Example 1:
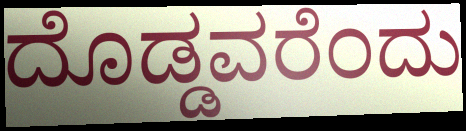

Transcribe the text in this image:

ದೊಡ್ಡವರೆಂದು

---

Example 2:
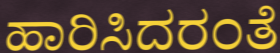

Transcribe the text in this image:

ಹಾರಿಸಿದರಂತೆ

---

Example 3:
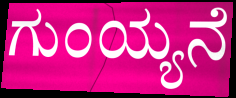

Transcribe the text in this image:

ಗುಂಯ್ಯನೆ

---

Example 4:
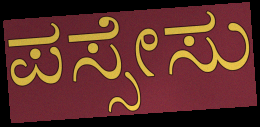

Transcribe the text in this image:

ಪಸ್ಸೇಸು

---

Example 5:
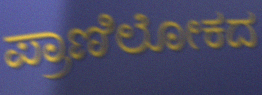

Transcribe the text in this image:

ಪ್ರಾಣಿಲೋಕದ